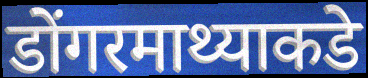
डोंगरमाथ्याकडे